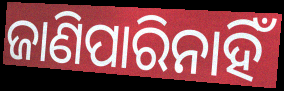
ଜାଣିପାରିନାହିଁ